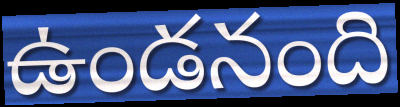
ఉండనంది